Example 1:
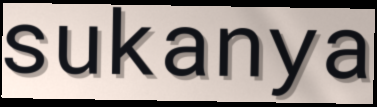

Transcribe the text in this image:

sukanya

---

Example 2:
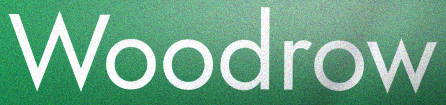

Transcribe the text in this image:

Woodrow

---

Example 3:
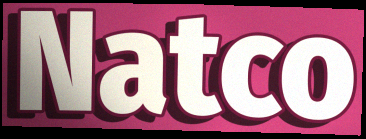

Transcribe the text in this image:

Natco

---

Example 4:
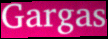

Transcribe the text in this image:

Gargas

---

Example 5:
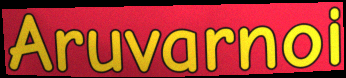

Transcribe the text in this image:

Aruvarnoi